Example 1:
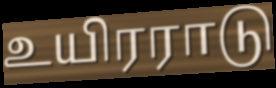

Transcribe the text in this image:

உயிரராடு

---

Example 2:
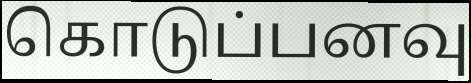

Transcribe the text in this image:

கொடுப்பனவு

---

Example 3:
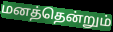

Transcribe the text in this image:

மனத்தென்றும்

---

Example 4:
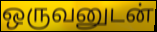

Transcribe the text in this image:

ஒருவனுடன்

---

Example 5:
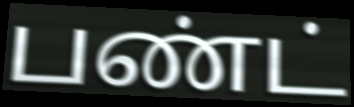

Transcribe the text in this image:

பண்ட்